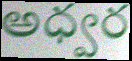
అధ్వర